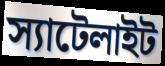
স্যাটেলাইট